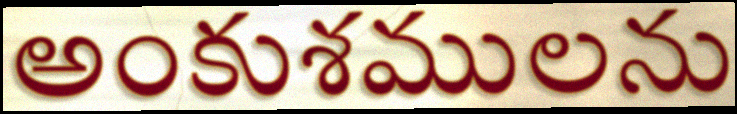
అంకుశములను